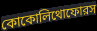
কোকোলিথোফোরস